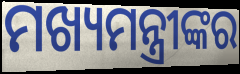
ମଖ୍ୟମନ୍ତ୍ରୀଙ୍କର